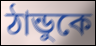
ঠান্ডুকে